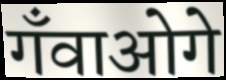
गँवाओगे